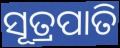
ସୂତ୍ରପାତି